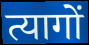
त्यागों